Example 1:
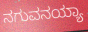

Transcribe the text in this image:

ನಗುವನಯ್ಯಾ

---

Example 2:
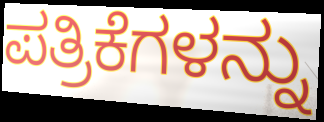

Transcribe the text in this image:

ಪತ್ರಿಕೆಗಳನ್ನು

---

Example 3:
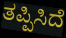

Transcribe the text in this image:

ತಪ್ಪಿಸಿದೆ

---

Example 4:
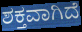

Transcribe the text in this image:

ಶಕ್ತವಾಗಿದೆ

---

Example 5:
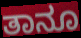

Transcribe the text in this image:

ತಾನೂ